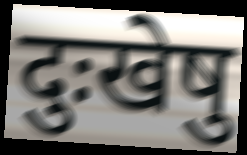
दुःखेषु